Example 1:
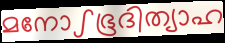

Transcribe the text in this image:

മനോഽഭൂദിത്യാഹ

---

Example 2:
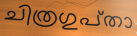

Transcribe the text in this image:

ചിത്രഗുപ്‌താ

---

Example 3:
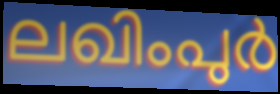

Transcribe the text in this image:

ലഖിംപുർ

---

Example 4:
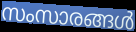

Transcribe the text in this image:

സംസാരങ്ങൾ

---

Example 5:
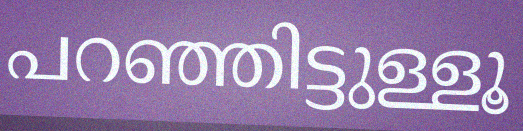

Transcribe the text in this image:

പറഞ്ഞിട്ടുള്ളൂ